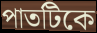
পাতটিকে